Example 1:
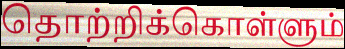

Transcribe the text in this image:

தொற்றிக்கொள்ளும்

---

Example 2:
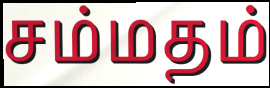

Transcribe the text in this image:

சம்மதம்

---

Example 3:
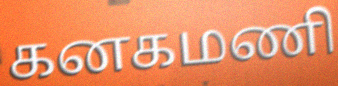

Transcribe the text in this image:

கனகமணி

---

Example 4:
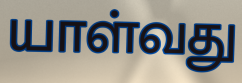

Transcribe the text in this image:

யாள்வது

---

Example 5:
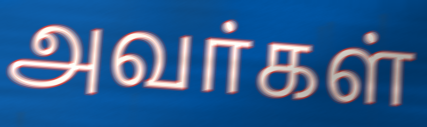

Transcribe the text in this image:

அவர்கள்